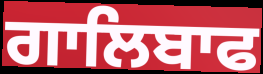
ਗਾਲਿਬਾਫ